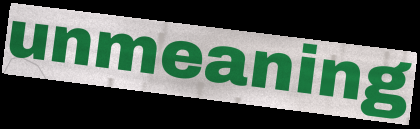
unmeaning